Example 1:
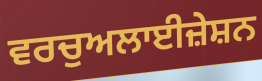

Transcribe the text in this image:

ਵਰਚੁਅਲਾਈਜ਼ੇਸ਼ਨ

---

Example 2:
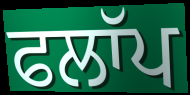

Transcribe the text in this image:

ਫਲਾੱਪ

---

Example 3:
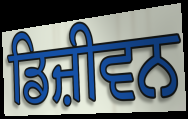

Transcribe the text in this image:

ਡਿਜ਼ੀਵਨ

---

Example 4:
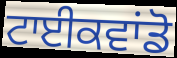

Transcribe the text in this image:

ਟਾਈਕਵਾਂਡੋ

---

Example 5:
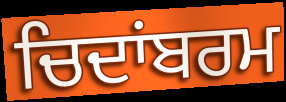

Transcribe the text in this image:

ਚਿਦਾਂਬਰਮ